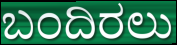
ಬಂದಿರಲು